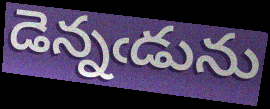
డెన్నఁడును